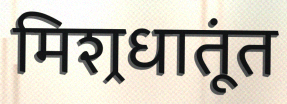
मिश्रधातूंत